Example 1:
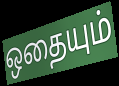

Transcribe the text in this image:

ஒதையும்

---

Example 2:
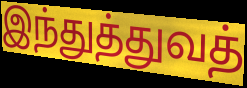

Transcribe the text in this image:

இந்துத்துவத்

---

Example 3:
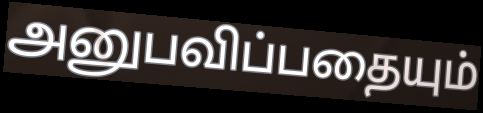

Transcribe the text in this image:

அனுபவிப்பதையும்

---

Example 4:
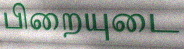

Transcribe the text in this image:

பிறையுடை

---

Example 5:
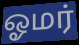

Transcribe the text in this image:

ஓமர்